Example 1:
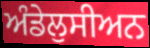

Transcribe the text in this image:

ਅੰਡੇਲੁਸੀਅਨ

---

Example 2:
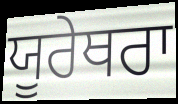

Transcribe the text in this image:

ਯੂਰੇਥਰਾ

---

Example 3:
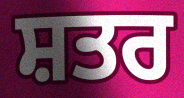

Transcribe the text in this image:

ਸ਼ਤਰ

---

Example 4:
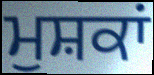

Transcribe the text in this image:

ਮੁਸ਼ਕਾਂ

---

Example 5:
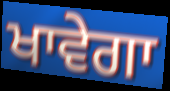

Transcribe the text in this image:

ਖਾਵੇਗਾ